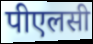
पीएलसी